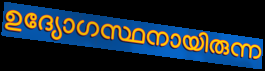
ഉദ്യോഗസ്ഥനായിരുന്ന